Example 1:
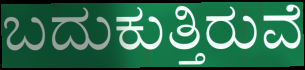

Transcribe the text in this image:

ಬದುಕುತ್ತಿರುವೆ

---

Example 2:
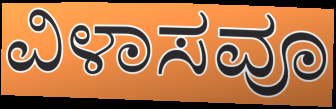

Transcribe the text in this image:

ವಿಳಾಸವೂ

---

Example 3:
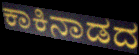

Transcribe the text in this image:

ಕಾಕಿನಾಡದ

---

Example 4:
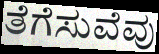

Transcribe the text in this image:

ತೆಗೆಸುವೆವು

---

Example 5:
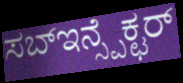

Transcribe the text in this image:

ಸಬ್ಇನ್ಸ್ಪೆಕ್ಟರ್